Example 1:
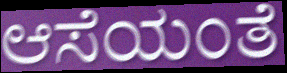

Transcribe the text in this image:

ಆಸೆಯಂತೆ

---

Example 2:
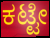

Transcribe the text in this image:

ಕಟ್ಟೇ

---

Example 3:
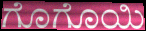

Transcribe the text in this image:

ಗೊಗೊಯಿ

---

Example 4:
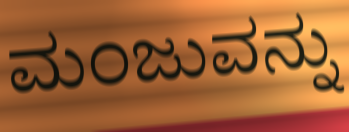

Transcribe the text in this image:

ಮಂಜುವನ್ನು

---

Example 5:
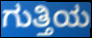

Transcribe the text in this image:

ಗುತ್ತಿಯ